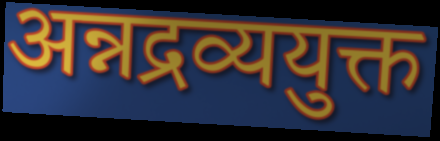
अन्नद्रव्ययुक्त